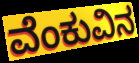
ವೆಂಕುವಿನ